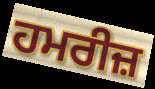
ਹਮਰੀਜ਼